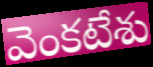
వెంకటేశు